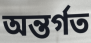
অন্তৰ্গত